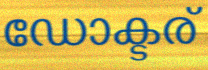
ഡോക്ടര്